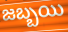
జబ్బయి